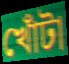
খোঁটা